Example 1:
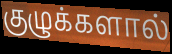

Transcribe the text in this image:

குழுக்களால்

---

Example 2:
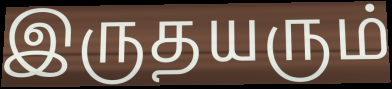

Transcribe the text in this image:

இருதயரும்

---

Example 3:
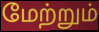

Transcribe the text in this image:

மேற்றும்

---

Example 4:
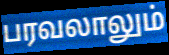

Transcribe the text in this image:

பரவலாலும்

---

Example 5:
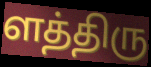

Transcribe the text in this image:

ளத்திரு